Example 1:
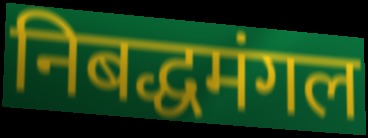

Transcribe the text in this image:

निबद्धमंगल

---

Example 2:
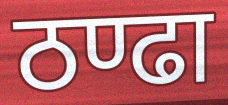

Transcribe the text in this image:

ठण्ढा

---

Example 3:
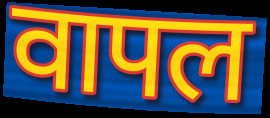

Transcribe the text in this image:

वापल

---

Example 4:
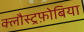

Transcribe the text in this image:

क्लौस्ट्रफ़ोबिया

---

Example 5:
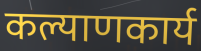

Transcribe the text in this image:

कल्याणकार्य